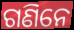
ଗଣିନେ